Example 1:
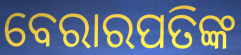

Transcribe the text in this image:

ବେରାରପତିଙ୍କ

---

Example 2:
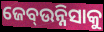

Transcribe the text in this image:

ଜେବ୍ଉନ୍ନିସାକୁ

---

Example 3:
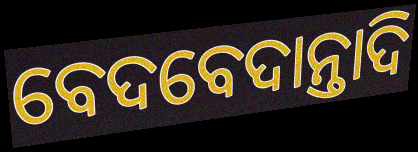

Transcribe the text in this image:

ବେଦବେଦାନ୍ତାଦି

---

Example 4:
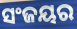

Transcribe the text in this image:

ସଂଜୟର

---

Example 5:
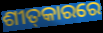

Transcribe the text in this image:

ଶୀତ୍‌କାରରେ